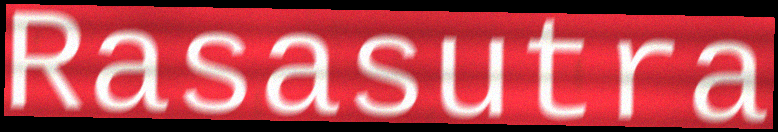
Rasasutra